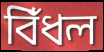
বিঁধল